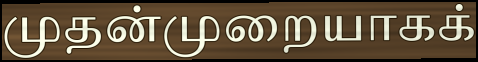
முதன்முறையாகக்